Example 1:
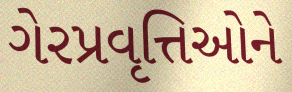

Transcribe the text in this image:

ગેરપ્રવૃત્તિઓને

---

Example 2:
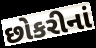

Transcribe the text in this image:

છોકરીનાં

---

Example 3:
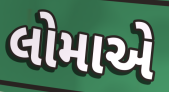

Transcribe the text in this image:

લોમાએ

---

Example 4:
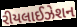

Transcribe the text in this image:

રીયલાઈઝેશન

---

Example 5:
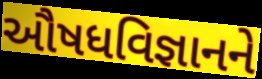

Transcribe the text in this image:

ઔષધવિજ્ઞાનને